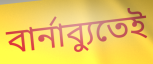
বার্নাব্যুতেই